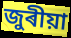
জুৰীয়া